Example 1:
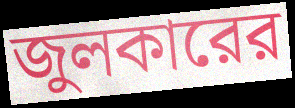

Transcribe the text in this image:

জুলকারের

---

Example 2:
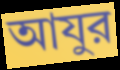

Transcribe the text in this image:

আযুর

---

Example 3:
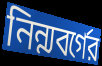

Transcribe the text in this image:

নিন্মবর্গের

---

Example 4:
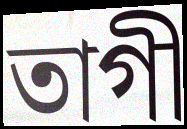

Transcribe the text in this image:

তাগী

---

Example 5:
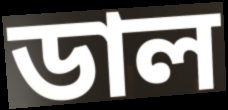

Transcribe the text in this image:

ডাল